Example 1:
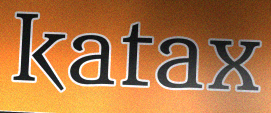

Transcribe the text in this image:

katax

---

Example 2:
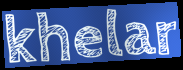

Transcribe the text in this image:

khelar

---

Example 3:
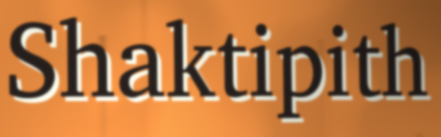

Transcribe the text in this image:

Shaktipith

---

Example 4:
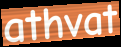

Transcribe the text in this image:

athvat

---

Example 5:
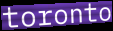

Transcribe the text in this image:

toronto